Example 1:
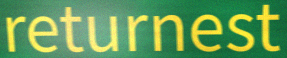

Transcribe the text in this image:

returnest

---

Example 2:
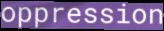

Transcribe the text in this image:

oppression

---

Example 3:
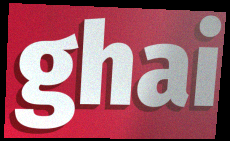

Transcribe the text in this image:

ghai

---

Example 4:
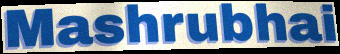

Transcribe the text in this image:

Mashrubhai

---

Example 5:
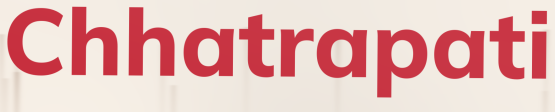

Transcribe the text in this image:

Chhatrapati